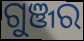
ଗୁଞ୍ଜର